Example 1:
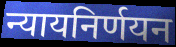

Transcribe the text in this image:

न्यायनिर्णयन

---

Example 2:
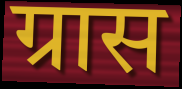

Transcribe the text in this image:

ग्रास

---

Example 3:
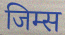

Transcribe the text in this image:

जिम्स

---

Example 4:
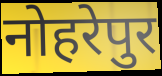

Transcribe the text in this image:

नोहरेपुर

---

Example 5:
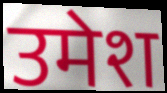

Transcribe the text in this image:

उमेश